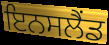
ਇਨਸਲੈਂਡ